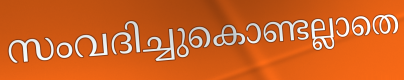
സംവദിച്ചുകൊണ്ടല്ലാതെ